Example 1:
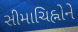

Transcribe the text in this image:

સીમાચિહ્નોને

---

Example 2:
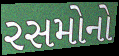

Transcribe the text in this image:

રસમોનો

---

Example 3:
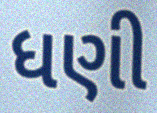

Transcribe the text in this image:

ધણી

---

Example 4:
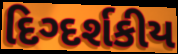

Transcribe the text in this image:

દિગ્દર્શકીય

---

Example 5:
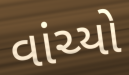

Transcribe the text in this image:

વાંચ્યો